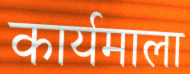
कार्यमाला